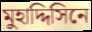
মুহাদ্দিসিনে